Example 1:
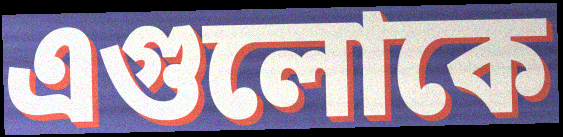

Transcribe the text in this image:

এগুলোকে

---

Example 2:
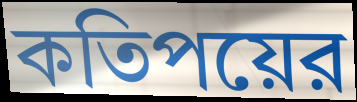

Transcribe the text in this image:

কতিপয়ের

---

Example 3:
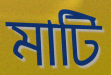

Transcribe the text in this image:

মাটি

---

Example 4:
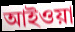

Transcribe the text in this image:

আইওয়া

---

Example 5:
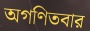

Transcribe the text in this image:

অগণিতবার